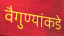
वैगुण्यांकडे